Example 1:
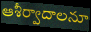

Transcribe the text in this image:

ఆశీర్వాదాలనూ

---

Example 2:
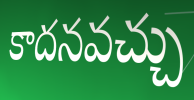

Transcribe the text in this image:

కాదనవచ్చు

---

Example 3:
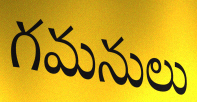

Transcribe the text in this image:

గమనులు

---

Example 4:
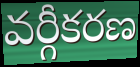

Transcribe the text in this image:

వర్గీకరణ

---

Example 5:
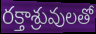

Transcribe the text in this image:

రక్తాశ్రువులతో